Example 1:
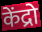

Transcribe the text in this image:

केंद्रो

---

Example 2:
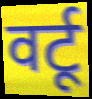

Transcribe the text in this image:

वर्टू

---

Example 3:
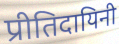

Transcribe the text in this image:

प्रीतिदायिनी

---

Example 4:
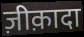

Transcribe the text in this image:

ज़ीक़ादा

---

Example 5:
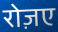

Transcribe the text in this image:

रोज़ए